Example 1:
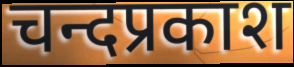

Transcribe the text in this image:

चन्दप्रकाश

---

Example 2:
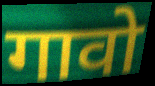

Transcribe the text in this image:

गावो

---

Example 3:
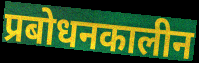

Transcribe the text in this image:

प्रबोधनकालीन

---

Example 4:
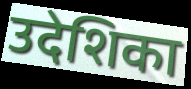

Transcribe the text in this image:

उदेशिका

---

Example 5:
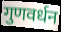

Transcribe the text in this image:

गुणवर्धन